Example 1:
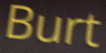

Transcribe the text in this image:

Burt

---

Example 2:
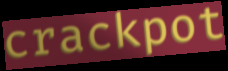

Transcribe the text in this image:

crackpot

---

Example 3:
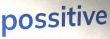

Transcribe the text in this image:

possitive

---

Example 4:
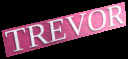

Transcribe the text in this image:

TREVOR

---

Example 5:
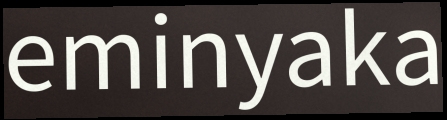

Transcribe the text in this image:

eminyaka